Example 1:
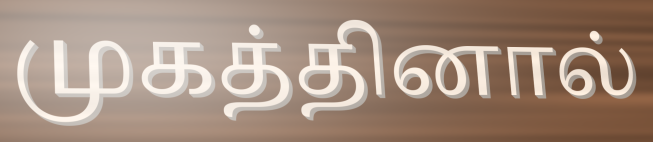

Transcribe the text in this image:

முகத்தினால்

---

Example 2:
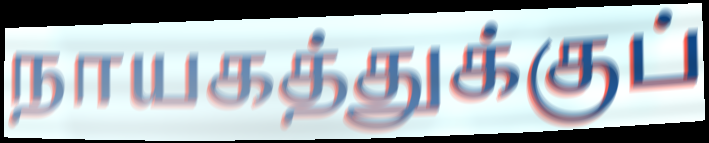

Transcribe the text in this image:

நாயகத்துக்குப்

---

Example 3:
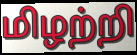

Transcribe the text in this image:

மிழற்றி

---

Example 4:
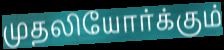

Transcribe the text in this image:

முதலியோர்க்கும்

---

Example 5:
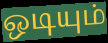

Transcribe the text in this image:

ஒடியும்